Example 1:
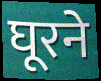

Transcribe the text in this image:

घूरने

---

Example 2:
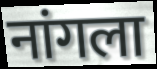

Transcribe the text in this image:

नांगला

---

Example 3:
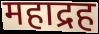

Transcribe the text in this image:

महाद्रह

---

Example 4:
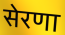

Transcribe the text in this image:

सेरणा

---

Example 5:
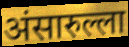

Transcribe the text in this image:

अंसारुल्ला